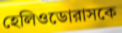
হেলিওডোরাসকে